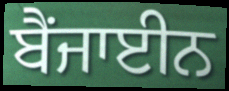
ਬੈਂਜਾਈਨ